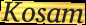
Kosam